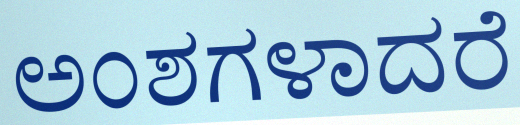
ಅಂಶಗಳಾದರೆ